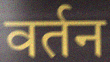
वर्तन